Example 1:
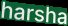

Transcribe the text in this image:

harsha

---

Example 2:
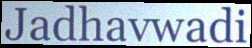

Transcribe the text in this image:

Jadhavwadi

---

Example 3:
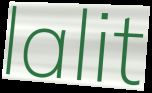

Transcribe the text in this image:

lalit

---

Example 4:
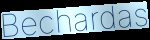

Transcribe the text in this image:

Bechardas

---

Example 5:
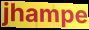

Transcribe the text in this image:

jhampe